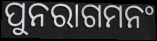
ପୁନରାଗମନଂ